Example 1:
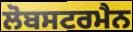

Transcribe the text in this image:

ਲੋਬਸਟਰਮੈਨ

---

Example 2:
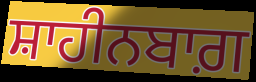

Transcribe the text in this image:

ਸ਼ਾਹੀਨਬਾਗ਼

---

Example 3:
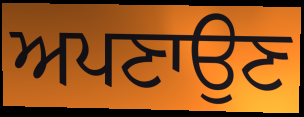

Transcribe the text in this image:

ਅਪਣਾਉਣ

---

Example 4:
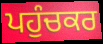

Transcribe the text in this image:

ਪਹੁੰਚਕਰ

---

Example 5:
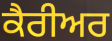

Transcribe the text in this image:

ਕੈਰੀਅਰ